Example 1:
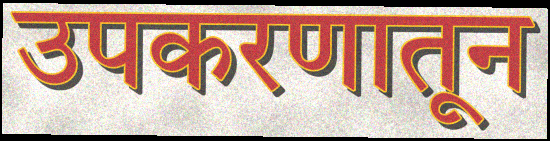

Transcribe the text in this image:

उपकरणातून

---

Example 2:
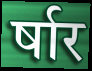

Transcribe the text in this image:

र्षार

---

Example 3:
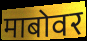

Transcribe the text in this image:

माबोवर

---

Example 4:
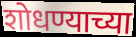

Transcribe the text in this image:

शोधण्याच्या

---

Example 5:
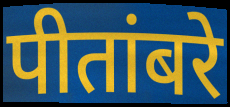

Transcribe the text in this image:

पीतांबरे